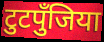
टुटपुँजिया